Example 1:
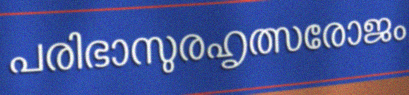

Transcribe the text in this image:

പരിഭാസുരഹൃത്സരോജം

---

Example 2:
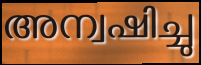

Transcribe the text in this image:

അന്വഷിച്ചു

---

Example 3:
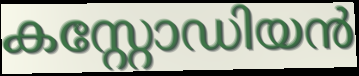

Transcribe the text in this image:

കസ്റ്റോഡിയൻ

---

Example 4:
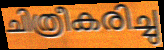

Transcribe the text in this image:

ചിത്രീകരിച്ചു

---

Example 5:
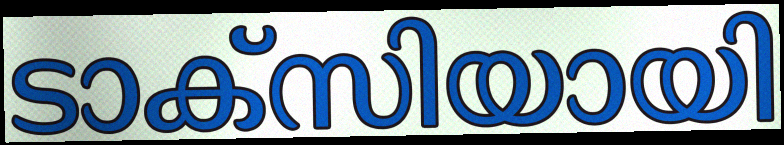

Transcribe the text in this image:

ടാക്സിയായി